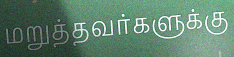
மறுத்தவர்களுக்கு